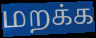
மறக்க